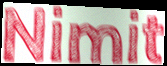
Nimit